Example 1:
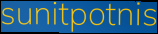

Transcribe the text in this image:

sunitpotnis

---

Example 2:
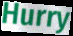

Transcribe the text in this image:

Hurry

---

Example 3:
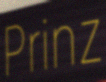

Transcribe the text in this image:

Prinz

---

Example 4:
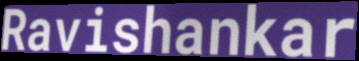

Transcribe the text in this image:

Ravishankar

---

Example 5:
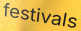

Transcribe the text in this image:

festivals